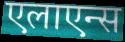
एलाएन्स